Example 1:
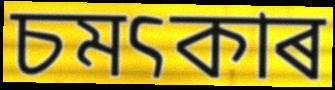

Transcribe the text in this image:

চমৎকাৰ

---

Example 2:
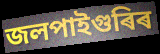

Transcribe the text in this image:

জলপাইগুৰিৰ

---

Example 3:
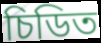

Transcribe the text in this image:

চিডিত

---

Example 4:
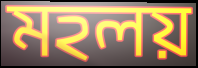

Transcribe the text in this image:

মহলয়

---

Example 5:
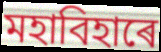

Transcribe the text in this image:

মহাবিহাৰে